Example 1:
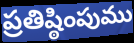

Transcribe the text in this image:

ప్రతిష్ఠింపుము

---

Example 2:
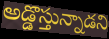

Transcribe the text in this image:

అడ్డొస్తున్నాడని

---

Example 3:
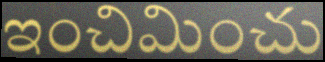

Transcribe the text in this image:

ఇంచిమించు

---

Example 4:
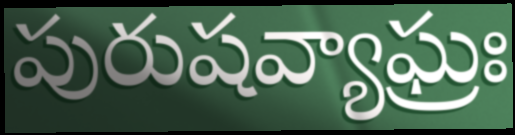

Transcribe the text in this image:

పురుషవ్యాఘ్రః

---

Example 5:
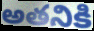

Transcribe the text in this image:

అతనికి